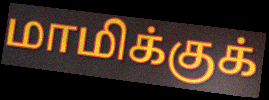
மாமிக்குக்